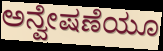
ಅನ್ವೇಷಣೆಯೂ